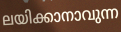
ലയിക്കാനാവുന്ന